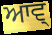
ਆਵ੍